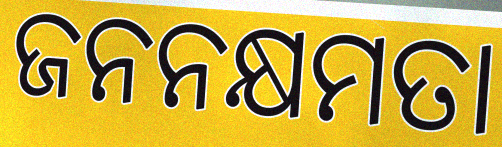
ଜନନକ୍ଷମତା